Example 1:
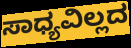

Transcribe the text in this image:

ಸಾಧ್ಯವಿಲ್ಲದ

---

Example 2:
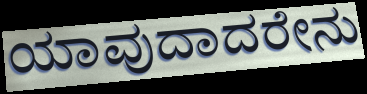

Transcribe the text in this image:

ಯಾವುದಾದರೇನು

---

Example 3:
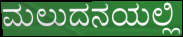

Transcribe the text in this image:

ಮಲುದನಯಲ್ಲಿ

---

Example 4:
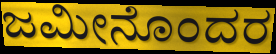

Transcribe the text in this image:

ಜಮೀನೊಂದರ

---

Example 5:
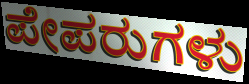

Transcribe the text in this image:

ಪೇಪರುಗಳು